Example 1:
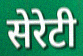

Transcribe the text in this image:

सेरेटी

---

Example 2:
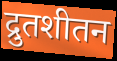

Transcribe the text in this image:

द्रुतशीतन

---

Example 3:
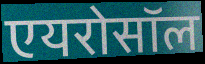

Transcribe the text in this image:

एयरोसॉल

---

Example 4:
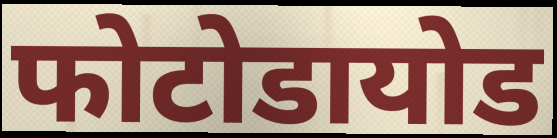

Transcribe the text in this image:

फोटोडायोड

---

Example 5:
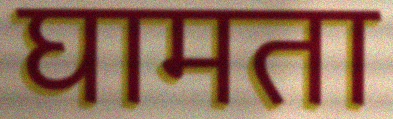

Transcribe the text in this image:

घामता